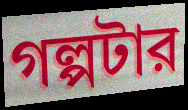
গল্পটার